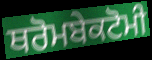
ਥਰੋਮਬੇਕਟੋਮੀ